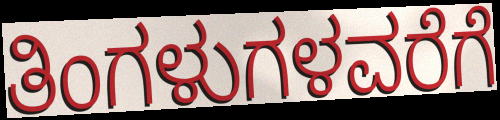
ತಿಂಗಳುಗಳವರೆಗೆ